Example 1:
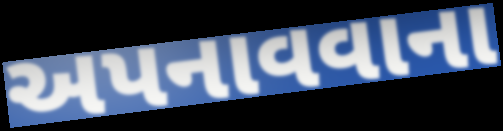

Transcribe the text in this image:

અપનાવવાના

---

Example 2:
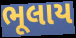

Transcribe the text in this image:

ભૂલાય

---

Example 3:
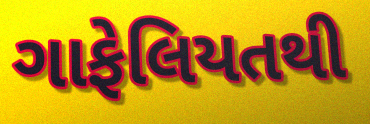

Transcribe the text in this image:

ગાફેલિયતથી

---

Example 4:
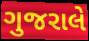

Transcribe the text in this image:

ગુજરાલે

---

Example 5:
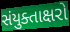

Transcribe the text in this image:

સંયુક્તાક્ષરો